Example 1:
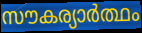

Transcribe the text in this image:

സൗകര്യാർത്ഥം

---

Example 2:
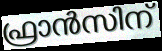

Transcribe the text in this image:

ഫ്രാൻസിന്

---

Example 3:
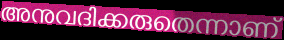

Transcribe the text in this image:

അനുവദിക്കരുതെന്നാണ്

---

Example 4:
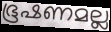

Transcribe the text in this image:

ഭൂഷണമല്ല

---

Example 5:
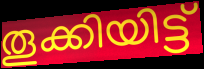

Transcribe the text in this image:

തൂക്കിയിട്ട്